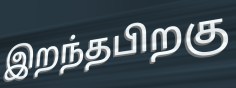
இறந்தபிறகு